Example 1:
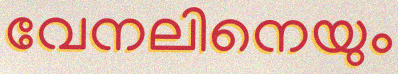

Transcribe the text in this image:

വേനലിനെയും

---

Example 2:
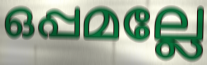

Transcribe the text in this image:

ഒപ്പമല്ലേ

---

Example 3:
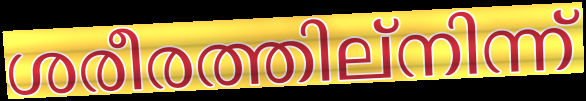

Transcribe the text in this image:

ശരീരത്തില്നിന്ന്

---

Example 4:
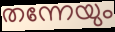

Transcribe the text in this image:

തന്നേയും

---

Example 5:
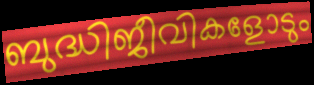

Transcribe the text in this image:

ബുദ്ധിജീവികളോടും